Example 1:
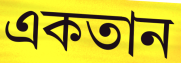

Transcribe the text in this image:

একতান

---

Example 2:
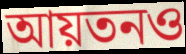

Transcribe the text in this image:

আয়তনও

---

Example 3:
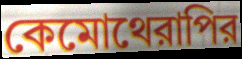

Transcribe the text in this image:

কেমোথেরাপির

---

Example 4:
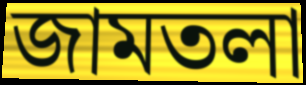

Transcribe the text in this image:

জামতলা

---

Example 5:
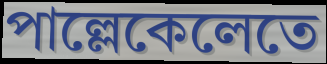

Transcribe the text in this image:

পাল্লেকেলেতে